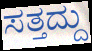
ಸತ್ತದ್ದು